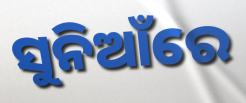
ସୁନିଆଁରେ